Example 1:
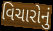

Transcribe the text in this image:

વિચારોનું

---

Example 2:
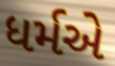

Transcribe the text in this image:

ધર્મએ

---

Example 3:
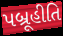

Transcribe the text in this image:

પબ્રૂહીતિ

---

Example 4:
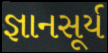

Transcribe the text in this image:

જ્ઞાનસૂર્ય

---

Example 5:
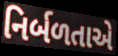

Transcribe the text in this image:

નિર્બળતાએ